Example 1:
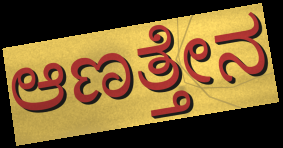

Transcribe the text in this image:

ಆಣತ್ತೇನ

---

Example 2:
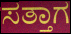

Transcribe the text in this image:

ಸತ್ತಾಗ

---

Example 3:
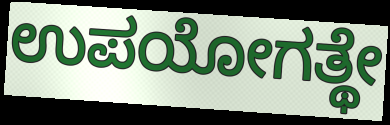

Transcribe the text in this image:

ಉಪಯೋಗತ್ಥೇ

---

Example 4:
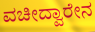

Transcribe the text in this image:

ವಚೀದ್ವಾರೇನ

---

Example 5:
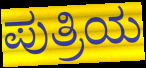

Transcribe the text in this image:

ಪುತ್ರಿಯ